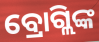
ବ୍ରୋଗ୍ଲିଙ୍କ